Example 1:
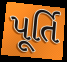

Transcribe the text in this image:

પૂર્તિ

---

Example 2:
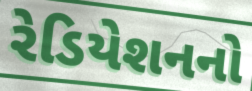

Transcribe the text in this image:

રેડિયેશનનો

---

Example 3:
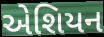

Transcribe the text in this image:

એશિયન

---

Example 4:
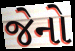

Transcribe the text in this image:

જેનો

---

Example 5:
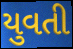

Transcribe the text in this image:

યુવતી